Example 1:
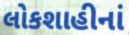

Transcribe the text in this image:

લોકશાહીનાં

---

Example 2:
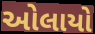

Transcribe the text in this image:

ઓલાયો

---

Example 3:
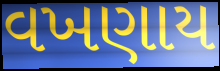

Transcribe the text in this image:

વખણાય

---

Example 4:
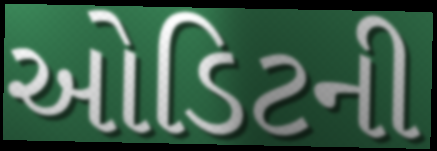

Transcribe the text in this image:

ઓડિટની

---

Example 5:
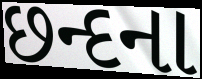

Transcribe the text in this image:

છન્દના